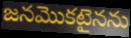
జనమొకటైనను